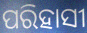
ପରିହାସୀ